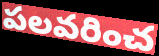
పలవరించ